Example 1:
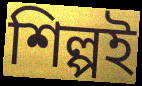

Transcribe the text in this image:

শিল্পই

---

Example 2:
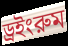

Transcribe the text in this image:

ড্রইংরুম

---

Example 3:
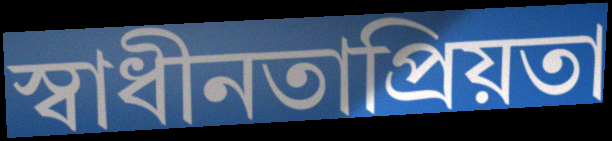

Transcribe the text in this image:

স্বাধীনতাপ্রিয়তা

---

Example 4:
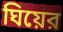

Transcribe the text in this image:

ঘিয়ের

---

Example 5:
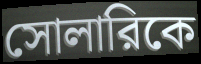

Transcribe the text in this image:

সোলারিকে